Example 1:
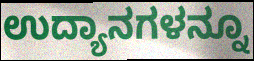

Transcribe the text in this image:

ಉದ್ಯಾನಗಳನ್ನೂ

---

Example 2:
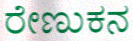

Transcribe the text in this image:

ರೇಣುಕನ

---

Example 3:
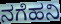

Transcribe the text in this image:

ನಗೆಹನಿ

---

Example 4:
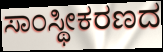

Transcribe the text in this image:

ಸಾಂಸ್ಥೀಕರಣದ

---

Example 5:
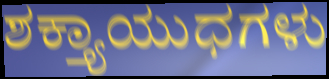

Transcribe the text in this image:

ಶಕ್ತ್ಯಾಯುಧಗಳು